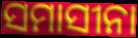
ସମାସୀନା